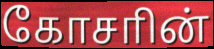
கோசரின்